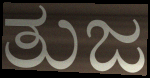
ತುಜ